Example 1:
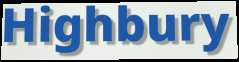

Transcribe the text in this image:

Highbury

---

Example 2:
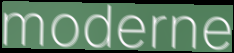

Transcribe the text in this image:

moderne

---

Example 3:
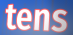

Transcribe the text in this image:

tens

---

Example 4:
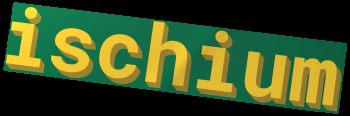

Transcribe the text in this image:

ischium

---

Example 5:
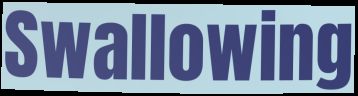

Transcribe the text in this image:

Swallowing